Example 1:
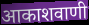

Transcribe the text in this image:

आकाशवाणी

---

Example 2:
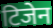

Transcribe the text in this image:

टिजेन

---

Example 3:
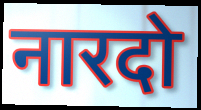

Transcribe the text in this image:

नारदो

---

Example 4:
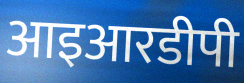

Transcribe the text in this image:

आइआरडीपी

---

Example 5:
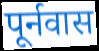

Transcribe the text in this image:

पूर्नवास